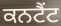
ਕਨਟੈਂਟ